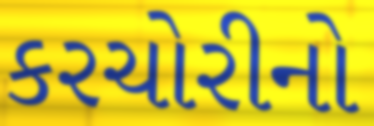
કરચોરીનો